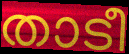
താടീ